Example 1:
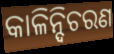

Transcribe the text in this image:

କାଳିନ୍ଦିଚରଣ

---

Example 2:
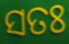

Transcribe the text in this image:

ସତଃ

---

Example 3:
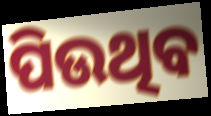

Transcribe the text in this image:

ପିଉଥିବ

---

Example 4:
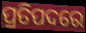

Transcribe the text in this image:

ପ୍ରତିପଦରେ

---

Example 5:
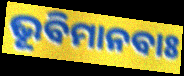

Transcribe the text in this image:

ଭୂବିମାନବାଃ